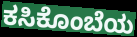
ಕಸಿಕೊಂಬೆಯ